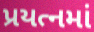
પ્રયત્નમાં